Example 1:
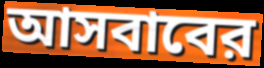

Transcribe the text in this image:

আসবাবের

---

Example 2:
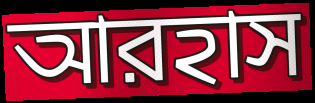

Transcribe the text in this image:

আরহাস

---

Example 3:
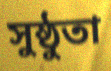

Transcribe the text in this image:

সুষ্ঠুতা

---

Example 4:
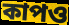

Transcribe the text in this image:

কাপও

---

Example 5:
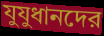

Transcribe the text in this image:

যুযুধানদের